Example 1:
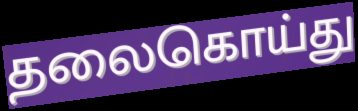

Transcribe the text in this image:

தலைகொய்து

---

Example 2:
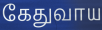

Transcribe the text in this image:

கேதுவாய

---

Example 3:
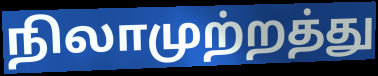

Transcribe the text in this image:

நிலாமுற்றத்து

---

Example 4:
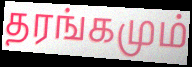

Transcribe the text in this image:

தரங்கமும்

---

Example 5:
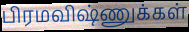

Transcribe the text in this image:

பிரமவிஷ்ணுக்கள்